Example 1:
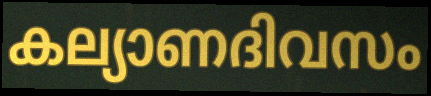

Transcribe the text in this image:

കല്യാണദിവസം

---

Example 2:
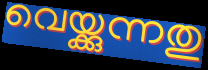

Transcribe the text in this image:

വെയ്ക്കുന്നതു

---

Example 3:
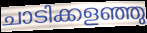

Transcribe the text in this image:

ചാടിക്കളഞ്ഞു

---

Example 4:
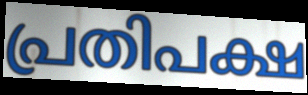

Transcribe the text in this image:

പ്രതിപക്ഷ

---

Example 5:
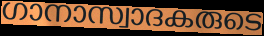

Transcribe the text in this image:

ഗാനാസ്വാദകരുടെ